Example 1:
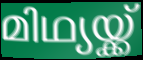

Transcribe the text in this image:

മിഥ്യയ്ക്ക്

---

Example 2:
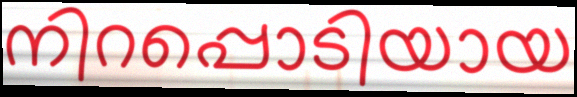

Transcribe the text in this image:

നിറപ്പൊടിയായ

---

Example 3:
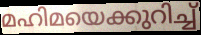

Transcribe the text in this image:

മഹിമയെക്കുറിച്ച്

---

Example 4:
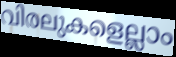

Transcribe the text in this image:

വിരലുകളെല്ലാം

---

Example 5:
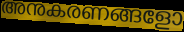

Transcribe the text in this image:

അനുകരണങ്ങളോ